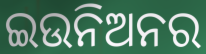
ଇଉନିଅନର